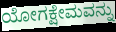
ಯೋಗಕ್ಷೇಮವನ್ನು